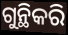
ଗୁନ୍ଥିକରି